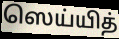
ஸெய்யித்